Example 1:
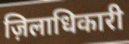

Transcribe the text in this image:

ज़िलाधिकारी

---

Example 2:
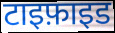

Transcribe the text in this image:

टाइफ़ाइड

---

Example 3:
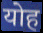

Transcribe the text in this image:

योह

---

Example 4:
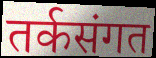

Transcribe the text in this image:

तर्कसंगत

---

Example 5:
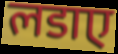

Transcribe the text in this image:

लडाए